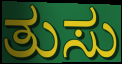
ತುಸು